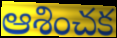
ఆశించక